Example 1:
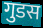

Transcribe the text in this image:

गुडस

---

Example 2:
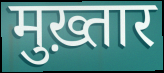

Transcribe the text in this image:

मुख़्तार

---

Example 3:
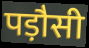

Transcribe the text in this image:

पड़ौसी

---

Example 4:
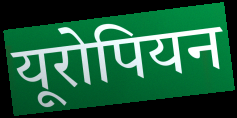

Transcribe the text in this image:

यूरोपियन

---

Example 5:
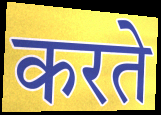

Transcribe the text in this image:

करते